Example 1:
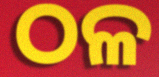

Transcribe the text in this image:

ଠଳ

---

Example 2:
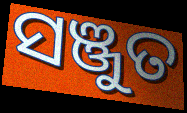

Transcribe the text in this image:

ସଞ୍ଜୁତ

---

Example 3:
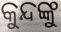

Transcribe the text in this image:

କୁନ୍ଦଙ୍କୁ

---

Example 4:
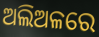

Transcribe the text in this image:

ଅଲିଅଳରେ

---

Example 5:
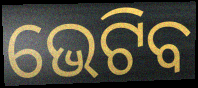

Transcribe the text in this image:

ଭେଟିବ